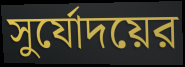
সুর্যোদয়ের